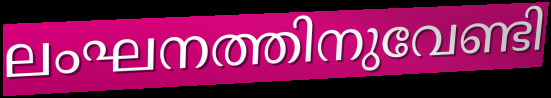
ലംഘനത്തിനുവേണ്ടി